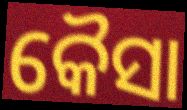
କୈସା